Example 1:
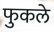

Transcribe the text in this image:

फुकले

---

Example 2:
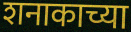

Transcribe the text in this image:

शनाकाच्या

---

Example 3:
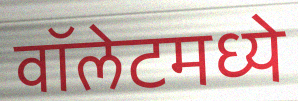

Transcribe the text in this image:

वॉलेटमध्ये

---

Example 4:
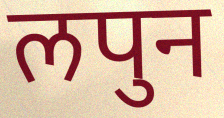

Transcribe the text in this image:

लपुन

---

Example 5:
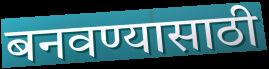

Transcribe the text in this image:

बनवण्यासाठी